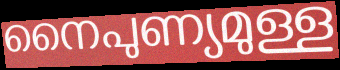
നൈപുണ്യമുള്ള